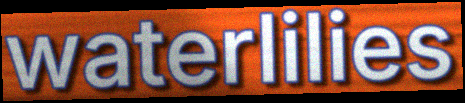
waterlilies